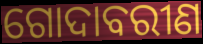
ଗୋଦାବରୀଣ